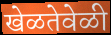
खेळतेवेळी